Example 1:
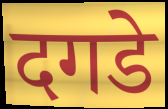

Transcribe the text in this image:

दगडे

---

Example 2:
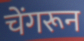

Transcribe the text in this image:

चेंगरून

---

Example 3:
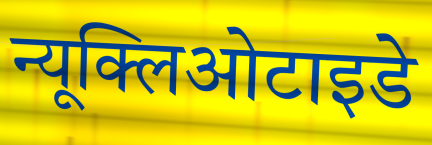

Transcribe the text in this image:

न्यूक्लिओटाइडे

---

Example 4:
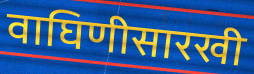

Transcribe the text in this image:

वाघिणीसारखी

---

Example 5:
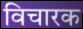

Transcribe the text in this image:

विचारक